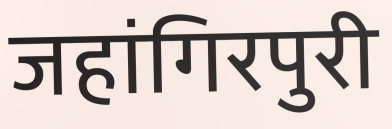
जहांगिरपुरी